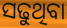
ସଢୁଥିବା